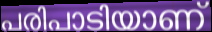
പരിപാടിയാണ്